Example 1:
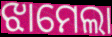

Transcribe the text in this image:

ଝାମେଲା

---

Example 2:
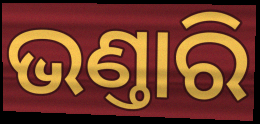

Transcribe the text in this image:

ଭଣ୍ତାରି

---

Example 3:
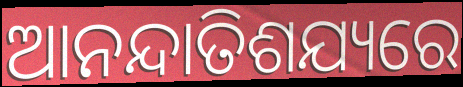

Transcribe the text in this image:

ଆନନ୍ଦାତିଶଯ୍ୟରେ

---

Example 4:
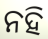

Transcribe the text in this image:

ନହି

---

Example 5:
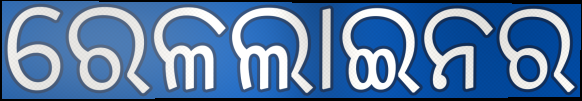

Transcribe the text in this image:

ରେଳଲାଇନର